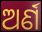
ଅର୍ଣ